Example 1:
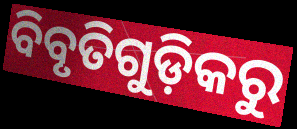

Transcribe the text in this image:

ବିବୃତିଗୁଡ଼ିକରୁ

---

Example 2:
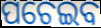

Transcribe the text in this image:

ପଚେଇବ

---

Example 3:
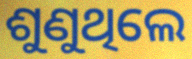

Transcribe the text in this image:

ଶୁଣୁଥିଲେ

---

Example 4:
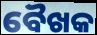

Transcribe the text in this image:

ବୈଖକ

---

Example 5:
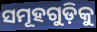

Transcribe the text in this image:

ସମୂହଗୁଡ଼ିକୁ